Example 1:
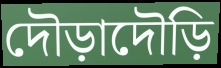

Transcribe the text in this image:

দৌড়াদৌড়ি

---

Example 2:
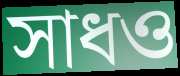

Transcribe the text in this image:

সাধও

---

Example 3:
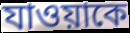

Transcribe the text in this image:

যাওয়াকে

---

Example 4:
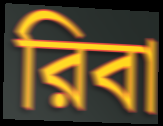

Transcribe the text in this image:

রিবা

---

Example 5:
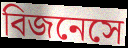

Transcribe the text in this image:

বিজনেসে